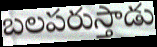
బలపరుస్తాడు